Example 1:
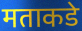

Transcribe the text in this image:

मताकडे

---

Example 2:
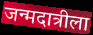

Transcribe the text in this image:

जन्मदात्रीला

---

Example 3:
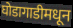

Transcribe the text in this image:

घोडागाडीमधून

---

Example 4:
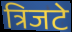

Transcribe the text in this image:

त्रिजटे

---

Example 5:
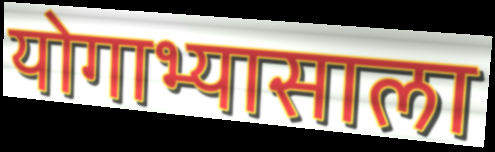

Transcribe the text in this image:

योगाभ्यासाला